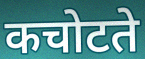
कचोटते